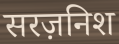
सरज़निश